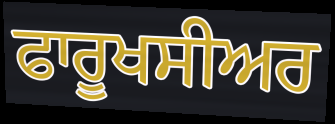
ਫਾਰੂਖਸੀਅਰ